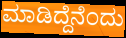
ಮಾಡಿದ್ದೆನೆಂದು